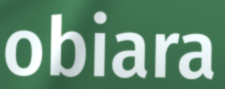
obiara